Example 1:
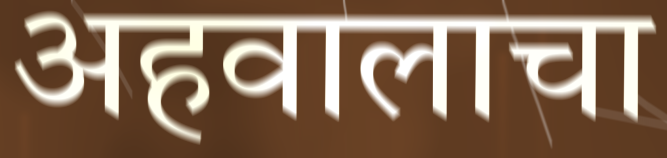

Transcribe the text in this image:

अहवालाचा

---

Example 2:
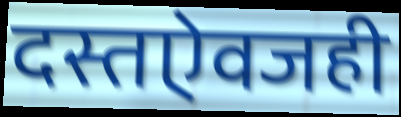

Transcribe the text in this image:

दस्तऐवजही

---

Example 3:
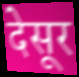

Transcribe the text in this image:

देसूर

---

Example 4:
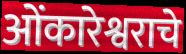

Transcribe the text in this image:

ओंकारेश्वराचे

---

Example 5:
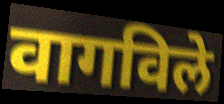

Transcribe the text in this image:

वागविले